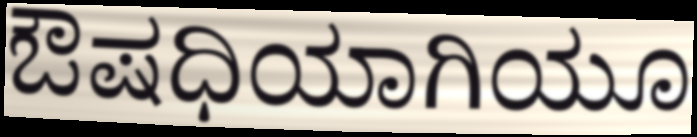
ಔಷಧಿಯಾಗಿಯೂ